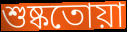
শুষ্কতোয়া